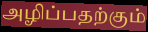
அழிப்பதற்கும்